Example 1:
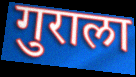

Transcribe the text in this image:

गुराला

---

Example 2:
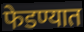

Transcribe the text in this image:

फेडण्यात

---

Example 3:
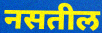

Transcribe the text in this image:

नसतील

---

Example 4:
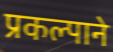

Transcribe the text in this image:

प्रकल्पाने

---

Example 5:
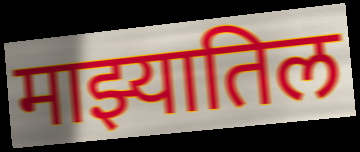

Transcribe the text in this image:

माझ्यातिल